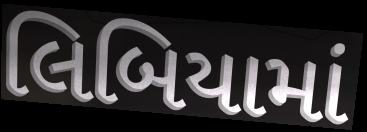
લિબિયામાં